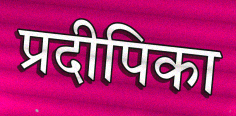
प्रदीपिका